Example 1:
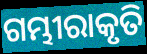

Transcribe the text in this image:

ଗମ୍ଭୀରାକୃତି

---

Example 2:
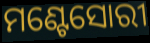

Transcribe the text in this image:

ମଣ୍ଟେସୋରୀ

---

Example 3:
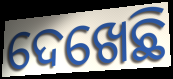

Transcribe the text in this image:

ଦେଖେଛି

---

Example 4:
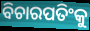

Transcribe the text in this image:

ବିଚାରପତିଂକୁ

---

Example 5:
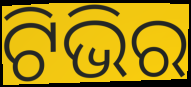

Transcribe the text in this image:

ଟିଭିର